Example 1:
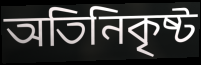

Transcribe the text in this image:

অতিনিকৃষ্ট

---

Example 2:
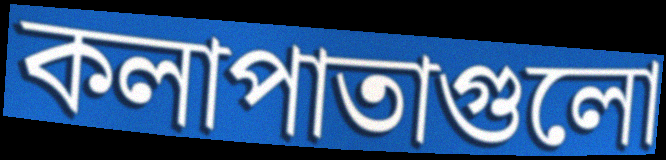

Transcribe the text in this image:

কলাপাতাগুলো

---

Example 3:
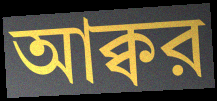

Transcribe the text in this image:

আক্বর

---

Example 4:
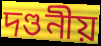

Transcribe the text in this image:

দণ্ডনীয়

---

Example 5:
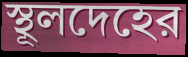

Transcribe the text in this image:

স্থূলদেহের